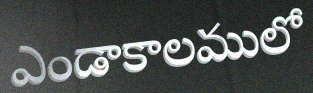
ఎండాకాలములో